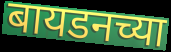
बायडनच्या